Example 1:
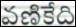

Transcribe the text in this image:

వణికేది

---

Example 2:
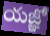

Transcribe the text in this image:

యజ్ఞో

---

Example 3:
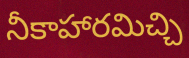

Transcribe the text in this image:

నీకాహారమిచ్చి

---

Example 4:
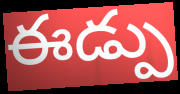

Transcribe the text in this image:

ఈడ్పు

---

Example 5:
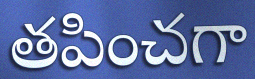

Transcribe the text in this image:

తపించగా